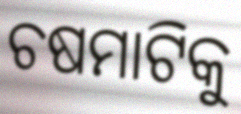
ଚଷମାଟିକୁ